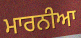
ਮਾਰਨੀਆ